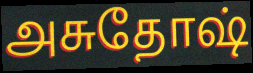
அசுதோஷ்